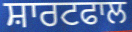
ਸ਼ਾਰਟਫਾਲ